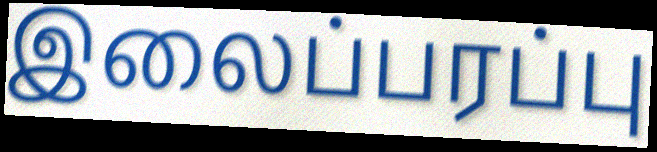
இலைப்பரப்பு